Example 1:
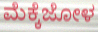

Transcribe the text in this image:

ಮೆಕ್ಕೆಜೋಳ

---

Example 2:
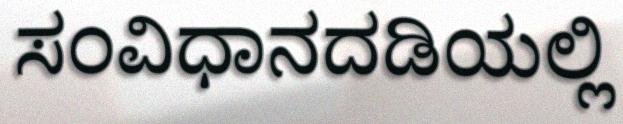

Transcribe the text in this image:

ಸಂವಿಧಾನದಡಿಯಲ್ಲಿ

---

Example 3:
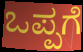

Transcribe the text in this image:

ಒಪ್ಪಗೆ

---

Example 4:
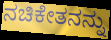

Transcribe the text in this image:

ನಚಿಕೇತನನ್ನು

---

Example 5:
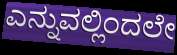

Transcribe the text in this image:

ಎನ್ನುವಲ್ಲಿಂದಲೇ